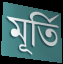
মূর্তি